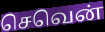
செவென்